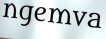
ngemva